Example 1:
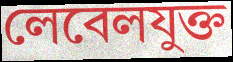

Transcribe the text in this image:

লেবেলযুক্ত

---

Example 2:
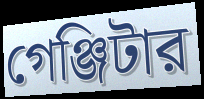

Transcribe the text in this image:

গেঞ্জিটার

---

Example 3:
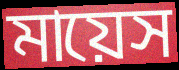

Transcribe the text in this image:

মায়েস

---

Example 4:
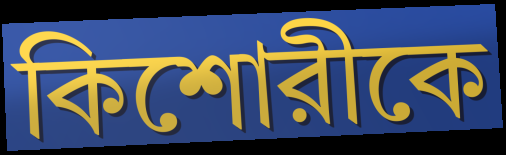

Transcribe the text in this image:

কিশোরীকে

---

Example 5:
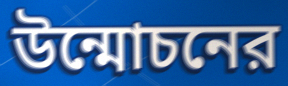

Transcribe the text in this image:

উন্মোচনের